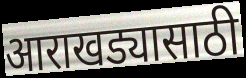
आराखड्यासाठी